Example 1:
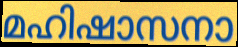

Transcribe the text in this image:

മഹിഷാസനാ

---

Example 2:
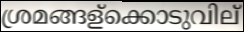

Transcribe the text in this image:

ശ്രമങ്ങള്ക്കൊടുവില്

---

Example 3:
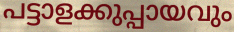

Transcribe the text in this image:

പട്ടാളക്കുപ്പായവും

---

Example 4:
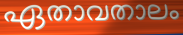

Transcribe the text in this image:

ഏതാവതാലം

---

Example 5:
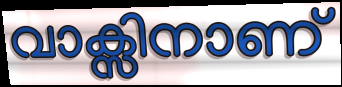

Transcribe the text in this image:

വാക്സിനാണ്